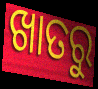
ଖାତରୁ